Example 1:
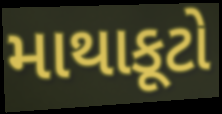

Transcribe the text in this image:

માથાકૂટો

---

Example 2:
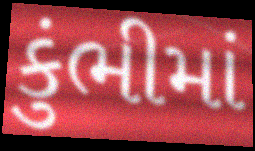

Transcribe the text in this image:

કુંભીમાં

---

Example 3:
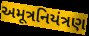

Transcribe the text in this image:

અમૂત્રનિયંત્રણ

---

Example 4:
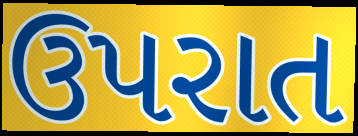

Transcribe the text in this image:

ઉપરાત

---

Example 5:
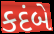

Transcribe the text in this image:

કદંબે